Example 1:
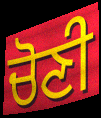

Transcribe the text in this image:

ਚੋਣੀ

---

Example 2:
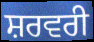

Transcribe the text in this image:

ਸ਼ਰਵਰੀ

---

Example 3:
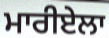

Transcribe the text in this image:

ਮਾਰੀਏਲਾ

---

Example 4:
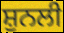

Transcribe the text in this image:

ਸ਼ੁਨਲੀ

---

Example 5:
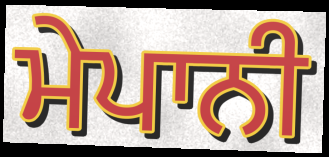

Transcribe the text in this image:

ਮੇਪਾਨੀ